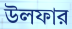
উলফার